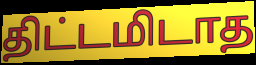
திட்டமிடாத